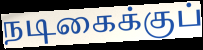
நடிகைக்குப்